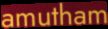
amutham